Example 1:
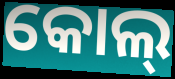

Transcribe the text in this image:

କୋଲ୍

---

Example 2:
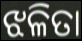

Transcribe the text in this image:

ଝଳିତା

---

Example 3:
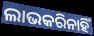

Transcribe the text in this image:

ଲାଭକରିନାହିଁ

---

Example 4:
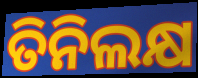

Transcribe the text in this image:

ତିନିଲକ୍ଷ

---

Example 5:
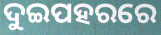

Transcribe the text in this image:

ଦୁଇପହରରେ